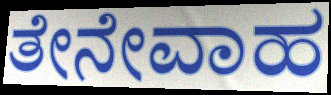
ತೇನೇವಾಹ